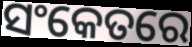
ସଂକେତରେ